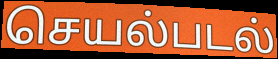
செயல்படல்